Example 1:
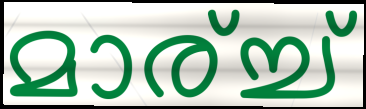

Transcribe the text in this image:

മാര്ച്ച്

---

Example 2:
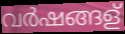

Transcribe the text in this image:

വർഷങ്ങള്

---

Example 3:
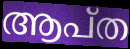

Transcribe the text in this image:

ആപ്ത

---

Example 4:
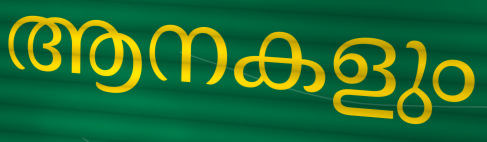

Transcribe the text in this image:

ആനകളും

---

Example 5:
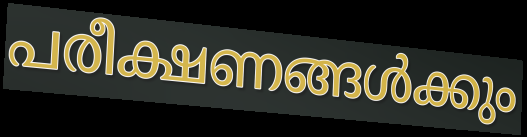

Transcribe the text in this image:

പരീക്ഷണങ്ങൾക്കും